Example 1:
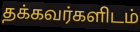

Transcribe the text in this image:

தக்கவர்களிடம்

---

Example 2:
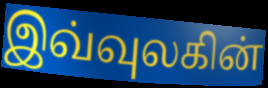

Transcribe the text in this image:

இவ்வுலகின்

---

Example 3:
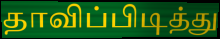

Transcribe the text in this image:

தாவிப்பிடித்து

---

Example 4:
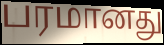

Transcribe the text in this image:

பரமானது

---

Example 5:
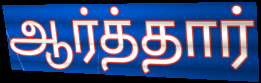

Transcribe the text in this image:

ஆர்த்தார்